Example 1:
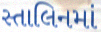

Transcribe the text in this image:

સ્તાલિનમાં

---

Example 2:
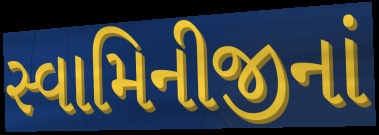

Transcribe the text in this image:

સ્વામિનીજીનાં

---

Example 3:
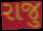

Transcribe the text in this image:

રાજુ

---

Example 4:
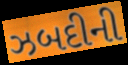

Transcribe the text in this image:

ઝબદીની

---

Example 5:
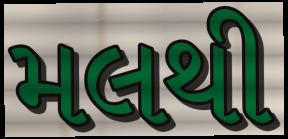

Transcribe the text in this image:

મલથી